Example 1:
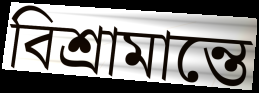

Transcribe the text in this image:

বিশ্রামান্তে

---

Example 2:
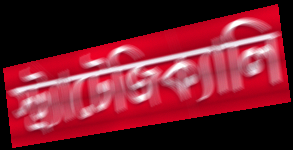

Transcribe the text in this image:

স্ট্র্যাটেজিক্যালি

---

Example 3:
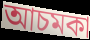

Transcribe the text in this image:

আচমকা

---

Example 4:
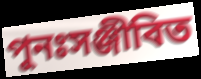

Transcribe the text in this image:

পুনঃসঞ্জীবিত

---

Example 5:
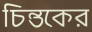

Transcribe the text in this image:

চিন্তকের